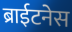
ब्राईटनेस